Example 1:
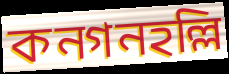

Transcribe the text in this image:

কনগনহল্লি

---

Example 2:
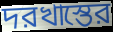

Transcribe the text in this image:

দরখাস্তের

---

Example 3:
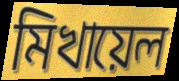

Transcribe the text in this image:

মিখায়েল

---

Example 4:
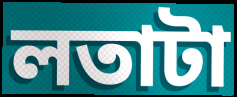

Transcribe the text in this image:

লতাটা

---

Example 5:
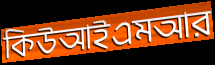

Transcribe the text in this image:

কিউআইএমআর